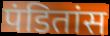
पंडितांस